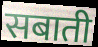
सबाती